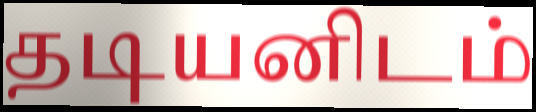
தடியனிடம்